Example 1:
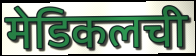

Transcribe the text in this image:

मेडिकलची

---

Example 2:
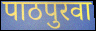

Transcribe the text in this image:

पाठपुरवा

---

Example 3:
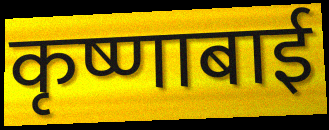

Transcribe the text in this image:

कृष्णाबाई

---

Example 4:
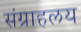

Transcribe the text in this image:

संग्राहलय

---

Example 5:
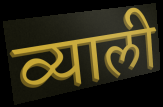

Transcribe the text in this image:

व्याली